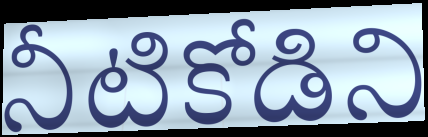
నీటికోడిని